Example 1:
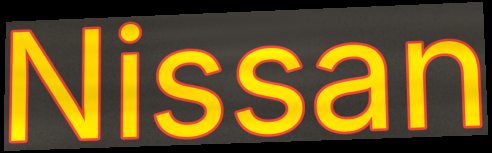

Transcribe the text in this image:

Nissan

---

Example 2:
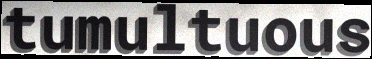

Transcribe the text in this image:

tumultuous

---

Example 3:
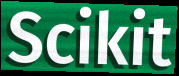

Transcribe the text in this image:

Scikit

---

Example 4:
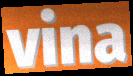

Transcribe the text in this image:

vina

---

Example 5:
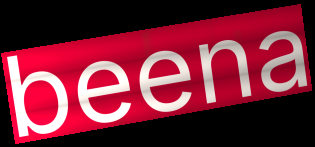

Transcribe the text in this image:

beena